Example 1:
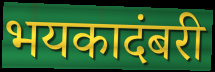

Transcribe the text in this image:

भयकादंबरी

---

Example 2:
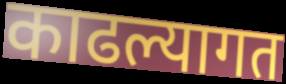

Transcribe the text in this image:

काढल्यागत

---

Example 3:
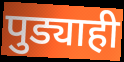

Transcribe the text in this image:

पुड्याही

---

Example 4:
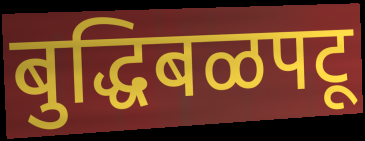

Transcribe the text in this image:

बुद्धिबळपटू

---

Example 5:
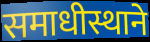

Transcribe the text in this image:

समाधीस्थाने